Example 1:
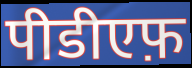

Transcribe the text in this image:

पीडीएफ़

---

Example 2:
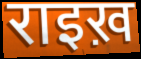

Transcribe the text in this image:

राइख़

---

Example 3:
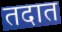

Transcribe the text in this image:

तदात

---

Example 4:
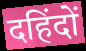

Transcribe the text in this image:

दहिंदों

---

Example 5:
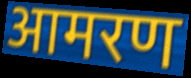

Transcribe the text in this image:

आमरण